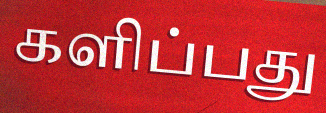
களிப்பது